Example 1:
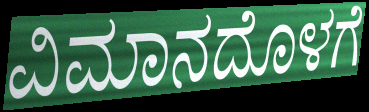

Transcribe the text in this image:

ವಿಮಾನದೊಳಗೆ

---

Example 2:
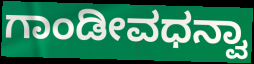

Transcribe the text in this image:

ಗಾಂಡೀವಧನ್ವಾ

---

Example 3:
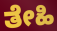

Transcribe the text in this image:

ತೇಹಿ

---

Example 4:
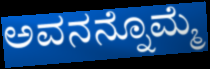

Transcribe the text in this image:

ಅವನನ್ನೊಮ್ಮೆ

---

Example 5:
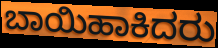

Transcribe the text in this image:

ಬಾಯಿಹಾಕಿದರು